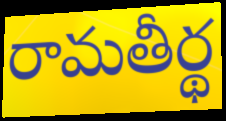
రామతీర్థ